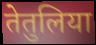
तेतुलिया